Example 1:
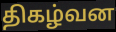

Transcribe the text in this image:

திகழ்வன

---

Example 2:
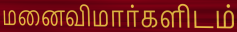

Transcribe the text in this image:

மனைவிமார்களிடம்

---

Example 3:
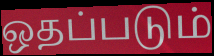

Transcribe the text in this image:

ஒதப்படும்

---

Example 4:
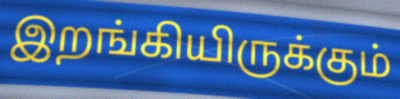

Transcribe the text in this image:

இறங்கியிருக்கும்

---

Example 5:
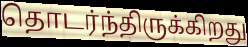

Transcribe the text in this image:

தொடர்ந்திருக்கிறது